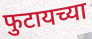
फुटायच्या